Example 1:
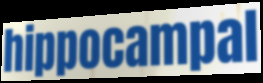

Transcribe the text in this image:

hippocampal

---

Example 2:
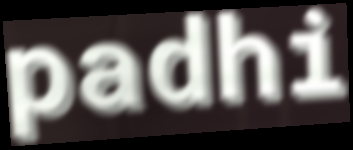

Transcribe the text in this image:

padhi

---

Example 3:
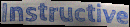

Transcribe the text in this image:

Instructive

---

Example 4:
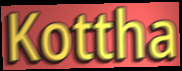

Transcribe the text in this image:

Kottha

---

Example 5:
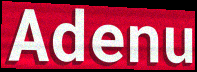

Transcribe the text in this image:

Adenu